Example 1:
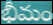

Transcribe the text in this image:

భీమం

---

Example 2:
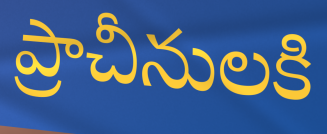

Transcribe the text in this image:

ప్రాచీనులకి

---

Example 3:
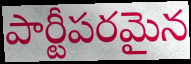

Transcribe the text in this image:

పార్టీపరమైన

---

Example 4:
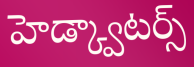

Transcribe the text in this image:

హెడ్క్వాటర్స్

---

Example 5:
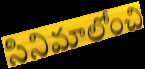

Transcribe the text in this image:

సినిమాలోంచి